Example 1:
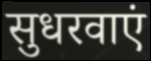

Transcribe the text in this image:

सुधरवाएं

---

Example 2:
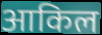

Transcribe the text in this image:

आकिल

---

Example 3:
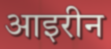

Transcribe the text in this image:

आइरीन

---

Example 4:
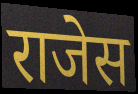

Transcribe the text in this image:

राजेस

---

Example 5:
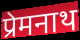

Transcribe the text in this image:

प्रेमनाथ